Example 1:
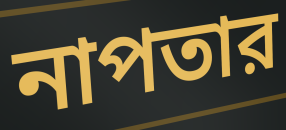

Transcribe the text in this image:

নাপতার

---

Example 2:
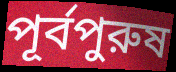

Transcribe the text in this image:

পূর্বপুরুষ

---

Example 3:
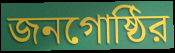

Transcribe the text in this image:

জনগোষ্ঠির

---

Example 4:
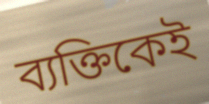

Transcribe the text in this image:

ব্যক্তিকেই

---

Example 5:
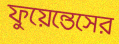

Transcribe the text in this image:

ফুয়েন্তেসের